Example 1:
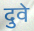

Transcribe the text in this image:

दुवे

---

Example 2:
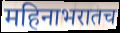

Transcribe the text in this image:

महिनाभरातच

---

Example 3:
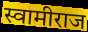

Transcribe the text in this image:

स्वामीराज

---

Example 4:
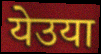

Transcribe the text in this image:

येउया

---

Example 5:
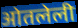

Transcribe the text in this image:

ओतलेली